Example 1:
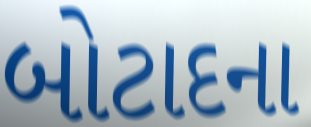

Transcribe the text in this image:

બોટાદના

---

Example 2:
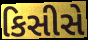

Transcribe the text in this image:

કિસીસે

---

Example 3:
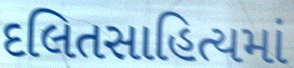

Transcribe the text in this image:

દલિતસાહિત્યમાં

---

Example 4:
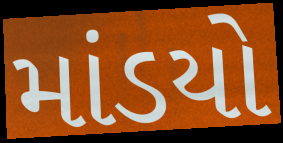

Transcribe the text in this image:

માંડયો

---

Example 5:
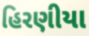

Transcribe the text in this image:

હિરણીયા